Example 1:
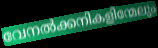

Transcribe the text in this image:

വേനൽക്കനികളിന്മേലും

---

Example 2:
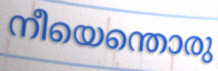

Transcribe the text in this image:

നീയെന്തൊരു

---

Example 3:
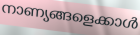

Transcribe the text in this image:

നാണ്യങ്ങളെക്കാൾ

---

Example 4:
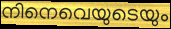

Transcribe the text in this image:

നിനെവെയുടെയും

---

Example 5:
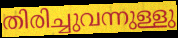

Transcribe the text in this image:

തിരിച്ചുവന്നുള്ളു